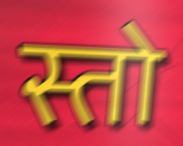
स्तो